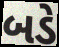
બડે